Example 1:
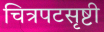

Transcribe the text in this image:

चित्रपटसृष्टी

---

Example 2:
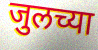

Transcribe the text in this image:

जुलच्या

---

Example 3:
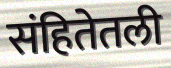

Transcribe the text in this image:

संहितेतली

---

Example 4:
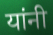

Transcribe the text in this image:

यांनी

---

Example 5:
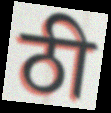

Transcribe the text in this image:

ठी